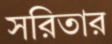
সরিতার